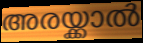
അരയ്ക്കാൽ